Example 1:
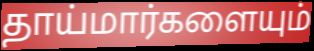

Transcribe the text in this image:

தாய்மார்களையும்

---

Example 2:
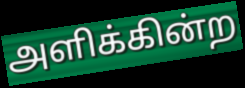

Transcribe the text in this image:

அளிக்கின்ற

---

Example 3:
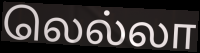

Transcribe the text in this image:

லெல்லா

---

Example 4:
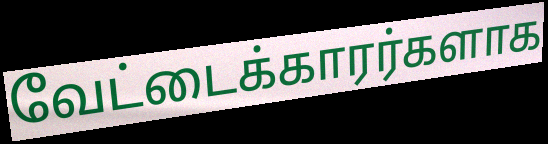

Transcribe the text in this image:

வேட்டைக்காரர்களாக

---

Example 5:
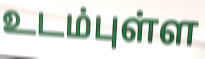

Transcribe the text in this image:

உடம்புள்ள